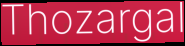
Thozargal